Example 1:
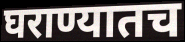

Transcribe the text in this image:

घराण्यातच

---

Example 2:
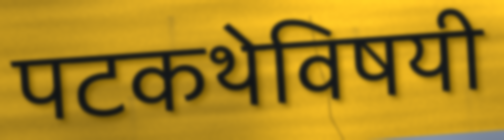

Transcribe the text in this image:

पटकथेविषयी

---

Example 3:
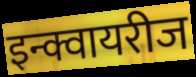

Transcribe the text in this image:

इन्क्वायरीज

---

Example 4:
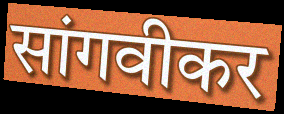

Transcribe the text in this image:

सांगवीकर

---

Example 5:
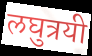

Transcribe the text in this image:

लघुत्रयी